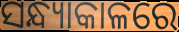
ସନ୍ଧ୍ୟାକାଳରେ